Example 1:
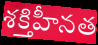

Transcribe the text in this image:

శక్తిహీనత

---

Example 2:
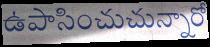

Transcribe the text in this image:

ఉపాసించుచున్నారో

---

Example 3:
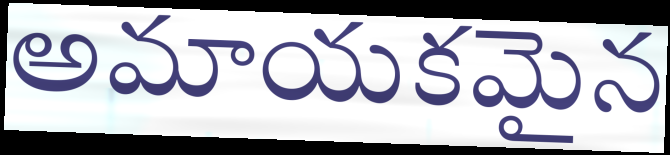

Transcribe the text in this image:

అమాయకమైన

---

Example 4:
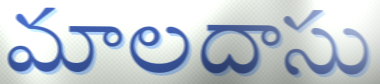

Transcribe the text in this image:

మాలదాసు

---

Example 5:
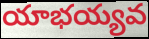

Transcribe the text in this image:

యాభయ్యవ